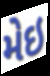
મેઇ